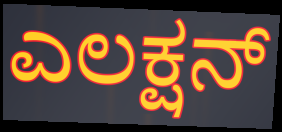
ಎಲಕ್ಷನ್